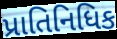
પ્રાતિનિધિક